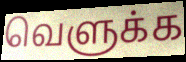
வெளுக்க